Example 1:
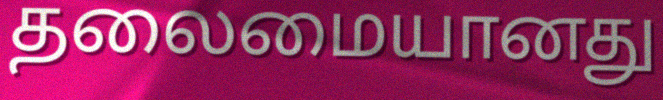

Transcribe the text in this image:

தலைமையானது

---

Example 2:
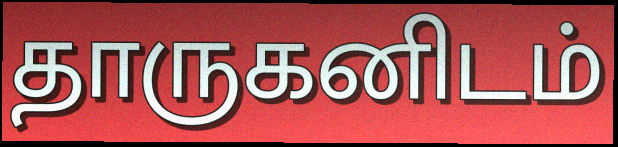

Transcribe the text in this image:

தாருகனிடம்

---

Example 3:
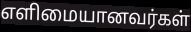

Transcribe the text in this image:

எளிமையானவர்கள்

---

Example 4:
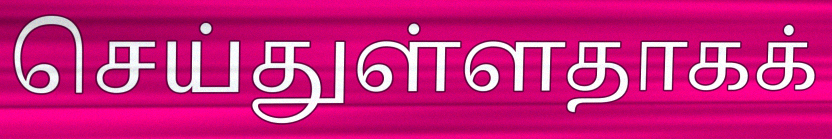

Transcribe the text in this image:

செய்துள்ளதாகக்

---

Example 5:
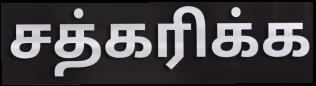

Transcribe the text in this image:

சத்கரிக்க